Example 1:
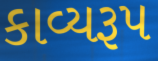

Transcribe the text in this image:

કાવ્યરૂપ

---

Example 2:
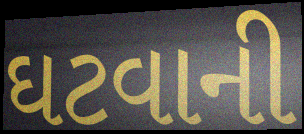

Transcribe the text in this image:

ઘટવાની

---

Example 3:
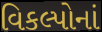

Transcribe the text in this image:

વિકલ્પોનાં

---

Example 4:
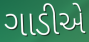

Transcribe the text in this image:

ગાડીએ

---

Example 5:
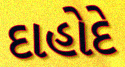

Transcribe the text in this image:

દાહોદે